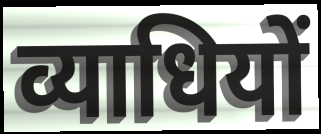
व्याधियों